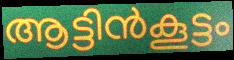
ആട്ടിൻകൂട്ടം